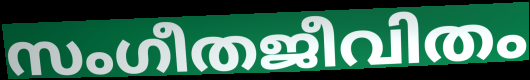
സംഗീതജീവിതം